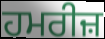
ਹਮਰੀਜ਼